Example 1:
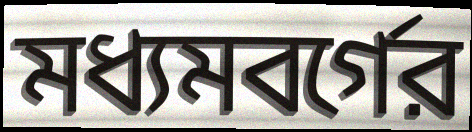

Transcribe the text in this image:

মধ্যমবর্গের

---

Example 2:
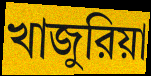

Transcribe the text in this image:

খাজুরিয়া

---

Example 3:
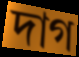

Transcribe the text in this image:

দাগ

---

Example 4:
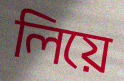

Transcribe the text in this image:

লিয়ে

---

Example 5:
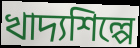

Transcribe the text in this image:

খাদ্যশিল্পে